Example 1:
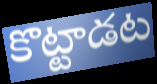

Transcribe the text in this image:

కొట్టాడట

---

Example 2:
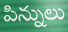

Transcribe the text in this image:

పిన్నులు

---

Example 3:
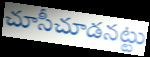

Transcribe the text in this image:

చూసీచూడనట్టు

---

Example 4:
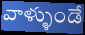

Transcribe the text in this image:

వాళ్ళుండే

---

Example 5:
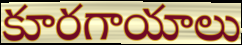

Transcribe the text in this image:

కూరగాయాలు